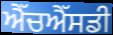
ਐੱਚਐੱਸਡੀ